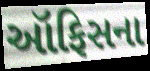
ઑફિસના